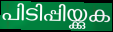
പിടിപ്പിയ്ക്കുക